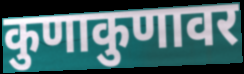
कुणाकुणावर